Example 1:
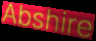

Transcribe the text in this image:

Abshire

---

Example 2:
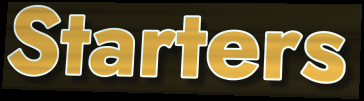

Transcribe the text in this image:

Starters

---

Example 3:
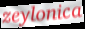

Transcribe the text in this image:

zeylonica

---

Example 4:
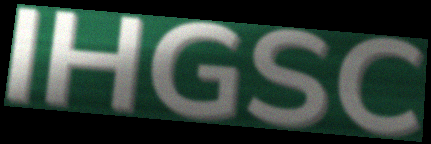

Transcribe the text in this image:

IHGSC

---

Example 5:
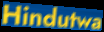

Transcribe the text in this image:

Hindutwa